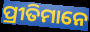
ପ୍ରୀତିମାନେ